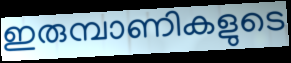
ഇരുമ്പാണികളുടെ